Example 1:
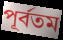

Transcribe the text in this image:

পূর্বতম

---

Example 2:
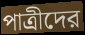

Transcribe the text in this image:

পাত্রীদের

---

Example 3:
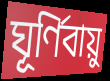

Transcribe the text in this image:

ঘূর্ণিবায়ু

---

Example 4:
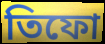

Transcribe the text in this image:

তিফো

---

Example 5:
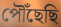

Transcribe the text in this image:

পৌঁছেছি